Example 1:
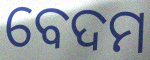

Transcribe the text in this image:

ବେଦମ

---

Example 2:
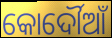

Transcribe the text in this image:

କୋର୍ଦୌଆଁ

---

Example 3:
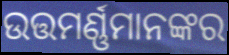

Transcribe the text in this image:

ଉତ୍ତମର୍ଣ୍ଣମାନଙ୍କର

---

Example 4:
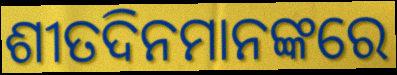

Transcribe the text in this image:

ଶୀତଦିନମାନଙ୍କରେ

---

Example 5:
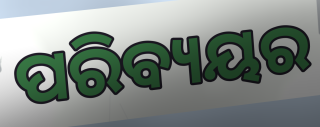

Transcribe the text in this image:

ପରିବ୍ୟୟର